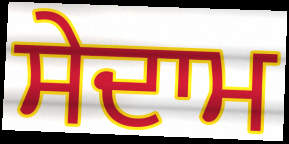
ਸੇਦਾਮ